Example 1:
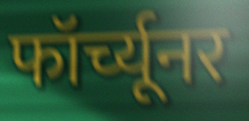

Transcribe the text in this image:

फॉर्च्यूनर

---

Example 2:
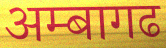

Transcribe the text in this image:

अम्बागढ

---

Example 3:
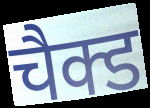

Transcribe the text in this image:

चैक्ड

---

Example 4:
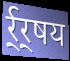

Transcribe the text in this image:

र्र्र्षय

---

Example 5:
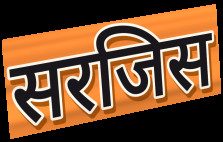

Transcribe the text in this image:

सरजिस